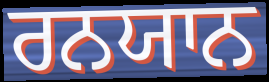
ਰਨਯਾਨ